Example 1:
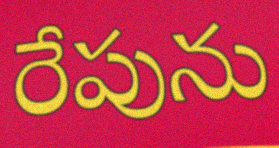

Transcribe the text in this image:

రేపును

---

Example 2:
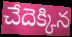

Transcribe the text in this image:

చేదెక్కిన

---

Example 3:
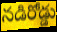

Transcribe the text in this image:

నడిరోడ్డు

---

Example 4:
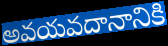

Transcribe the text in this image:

అవయవదానానికి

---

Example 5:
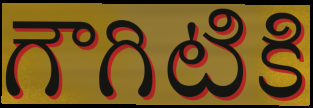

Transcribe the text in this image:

గౌగిటికి